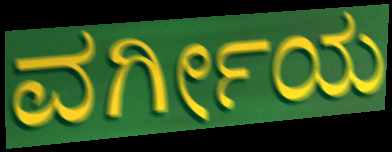
ವರ್ಗೀಯ